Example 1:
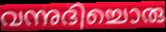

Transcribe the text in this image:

വന്നുദിച്ചൊരു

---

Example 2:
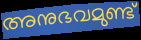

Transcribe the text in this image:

അനുഭവമുണ്ട്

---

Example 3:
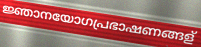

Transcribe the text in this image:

ജ്ഞാനയോഗപ്രഭാഷണങ്ങള്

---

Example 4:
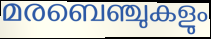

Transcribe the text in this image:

മരബെഞ്ചുകളും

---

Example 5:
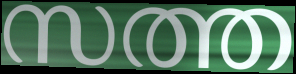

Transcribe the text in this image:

സത്ത